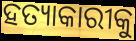
ହତ୍ୟାକାରୀକୁ